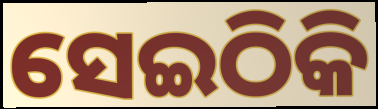
ସେଇଠିକି